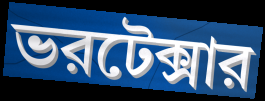
ভরটেক্সার